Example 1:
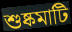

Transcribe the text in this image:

শুষ্কমাটি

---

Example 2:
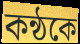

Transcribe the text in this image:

কন্ঠকে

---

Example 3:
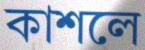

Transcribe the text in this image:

কাশলে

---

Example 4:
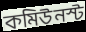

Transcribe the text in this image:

কমিউনস্ট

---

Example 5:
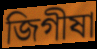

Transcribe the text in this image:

জিগীষা